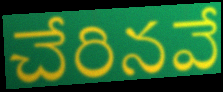
చేరినవే